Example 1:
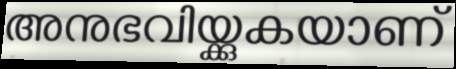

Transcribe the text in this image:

അനുഭവിയ്ക്കുകയാണ്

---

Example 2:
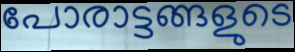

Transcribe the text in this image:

പോരാട്ടങ്ങളുടെ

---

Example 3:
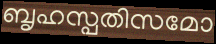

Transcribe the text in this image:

ബൃഹസ്പതിസമോ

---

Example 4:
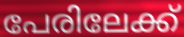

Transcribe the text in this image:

പേരിലേക്ക്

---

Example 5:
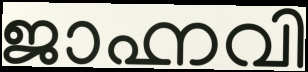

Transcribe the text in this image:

ജാഹ്നവി